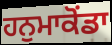
ਹਨੁਮਾਕੋਂਡਾ